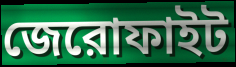
জেরোফাইট